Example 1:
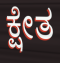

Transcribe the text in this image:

ಕ್ಷೇತ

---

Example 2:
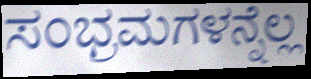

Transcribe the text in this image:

ಸಂಭ್ರಮಗಳನ್ನೆಲ್ಲ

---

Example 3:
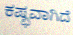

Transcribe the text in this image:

ಕಷ್ಟವಾಗಿದೆ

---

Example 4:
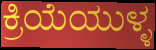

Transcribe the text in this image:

ಕ್ರಿಯೆಯುಳ್ಳ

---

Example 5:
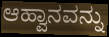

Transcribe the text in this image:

ಆಹ್ವಾನವನ್ನು